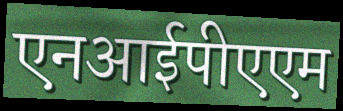
एनआईपीएएम